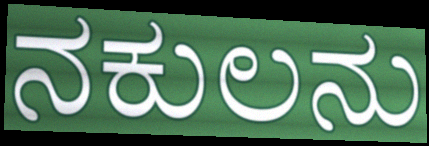
ನಕುಲನು